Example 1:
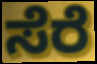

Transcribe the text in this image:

ಸೆರೆ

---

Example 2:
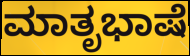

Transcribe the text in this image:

ಮಾತೃಭಾಷೆ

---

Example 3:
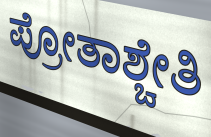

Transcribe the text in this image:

ಪ್ರೋತಾಶ್ಚೇತಿ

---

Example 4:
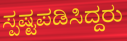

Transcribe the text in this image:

ಸ್ಪಷ್ಟಪಡಿಸಿದ್ದರು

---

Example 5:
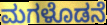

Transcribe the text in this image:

ಮಗಳೊಡನೆ